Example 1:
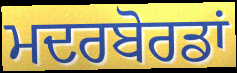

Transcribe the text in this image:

ਮਦਰਬੋਰਡਾਂ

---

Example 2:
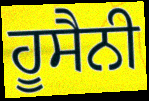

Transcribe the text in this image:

ਹੂਸੈਨੀ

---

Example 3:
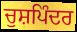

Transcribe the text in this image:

ਚੁਸ਼ਪਿੰਦਰ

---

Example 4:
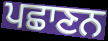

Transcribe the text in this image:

ਪਛਾਣਨ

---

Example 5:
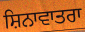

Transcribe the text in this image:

ਸ਼ਿਨਾਵਾਤਰਾ